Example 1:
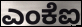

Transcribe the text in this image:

ಎಂಕೆಐ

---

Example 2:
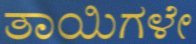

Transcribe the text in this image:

ತಾಯಿಗಳೇ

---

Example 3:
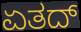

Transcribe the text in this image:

ಏತದ್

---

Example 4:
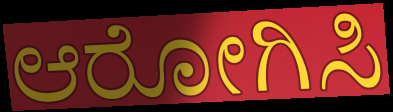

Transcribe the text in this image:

ಆರೋಗಿಸಿ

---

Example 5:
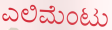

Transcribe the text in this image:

ಎಲಿಮೆಂಟು